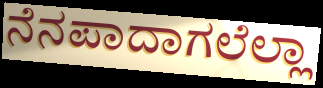
ನೆನಪಾದಾಗಲೆಲ್ಲಾ